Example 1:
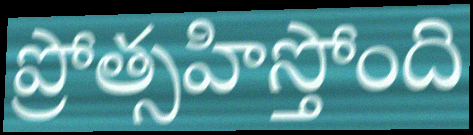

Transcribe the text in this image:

ప్రోత్సహిస్తోంది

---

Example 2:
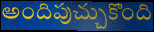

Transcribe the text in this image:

అందిపుచ్చుకొంది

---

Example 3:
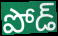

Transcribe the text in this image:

పోడ్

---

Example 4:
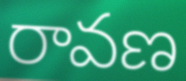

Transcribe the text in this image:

రావణ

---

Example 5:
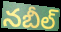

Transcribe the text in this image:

నబీల్